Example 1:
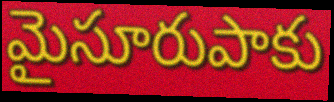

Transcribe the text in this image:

మైసూరుపాకు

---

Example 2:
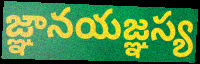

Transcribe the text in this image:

జ్ఞానయజ్ఞస్య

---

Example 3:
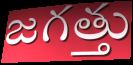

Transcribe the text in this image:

జగత్తు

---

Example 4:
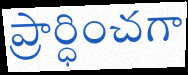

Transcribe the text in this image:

ప్రార్ధించగా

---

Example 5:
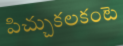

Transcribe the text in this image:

పిచ్చుకలకంటె